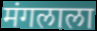
मंगलाला